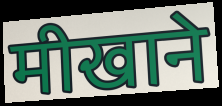
मीखाने